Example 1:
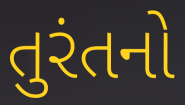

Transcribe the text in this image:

તુરંતનો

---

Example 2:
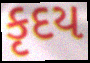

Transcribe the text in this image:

કૃદય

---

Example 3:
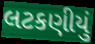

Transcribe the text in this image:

લટકણીયું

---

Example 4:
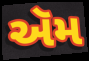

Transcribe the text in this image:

ઍમ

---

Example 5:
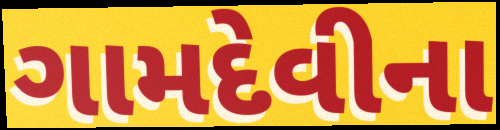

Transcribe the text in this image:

ગામદેવીના